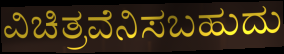
ವಿಚಿತ್ರವೆನಿಸಬಹುದು